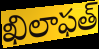
ఖిలాఫత్